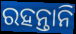
ରହନ୍ତାନି